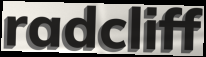
radcliff